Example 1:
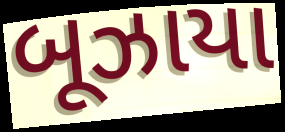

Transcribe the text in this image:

બૂઝાયા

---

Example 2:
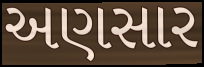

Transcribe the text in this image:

અણસાર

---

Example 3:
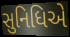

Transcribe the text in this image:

સુનિધિએ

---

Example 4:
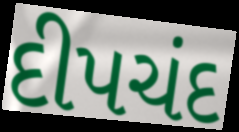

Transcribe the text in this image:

દીપચંદ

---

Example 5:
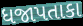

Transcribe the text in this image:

ધજાપતાકા